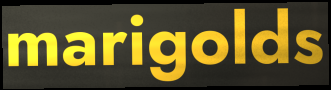
marigolds